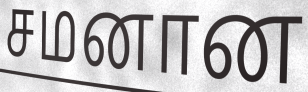
சமனான